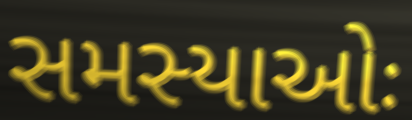
સમસ્યાઓઃ